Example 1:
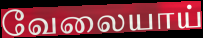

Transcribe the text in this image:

வேலையாய்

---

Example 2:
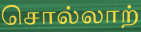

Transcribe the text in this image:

சொல்லாற்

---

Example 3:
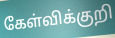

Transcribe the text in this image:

கேள்விக்குறி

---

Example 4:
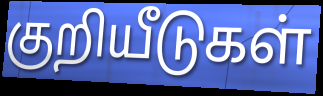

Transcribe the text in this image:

குறியீடுகள்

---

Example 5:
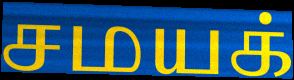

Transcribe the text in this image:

சமயக்